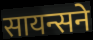
सायन्सने